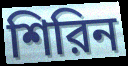
শিরিন